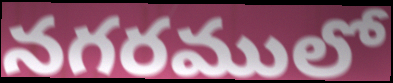
నగరములో